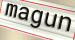
magun